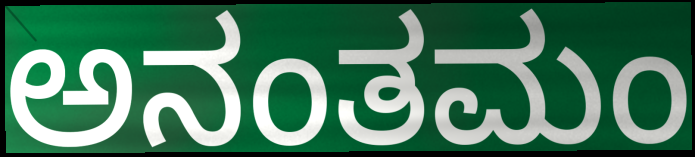
ಅನಂತಮಂ